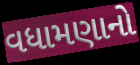
વધામણાનો